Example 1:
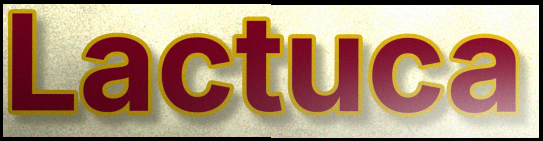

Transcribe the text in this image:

Lactuca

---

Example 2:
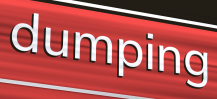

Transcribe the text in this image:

dumping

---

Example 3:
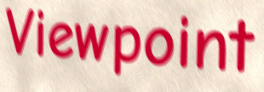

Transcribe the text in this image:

Viewpoint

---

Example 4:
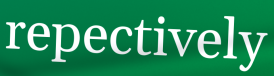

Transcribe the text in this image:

repectively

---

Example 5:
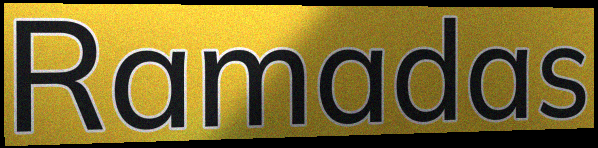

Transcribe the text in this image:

Ramadas